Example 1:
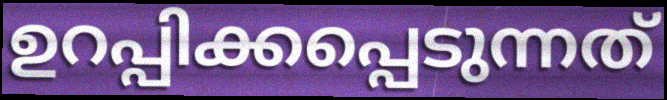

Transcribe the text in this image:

ഉറപ്പിക്കപ്പെടുന്നത്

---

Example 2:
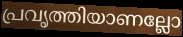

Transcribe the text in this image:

പ്രവൃത്തിയാണല്ലോ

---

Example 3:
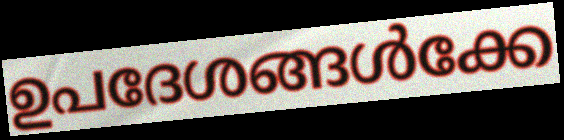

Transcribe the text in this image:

ഉപദേശങ്ങൾക്കേ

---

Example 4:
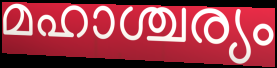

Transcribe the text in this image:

മഹാശ്ചര്യം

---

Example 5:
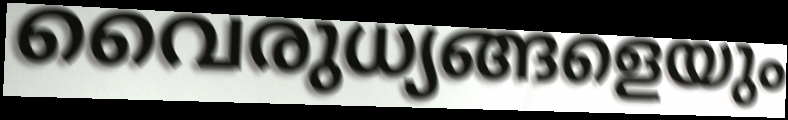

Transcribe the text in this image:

വൈരുധ്യങ്ങളെയും